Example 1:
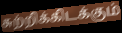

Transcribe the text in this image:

சுற்றிக்கிடக்கும்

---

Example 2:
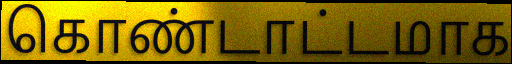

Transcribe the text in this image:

கொண்டாட்டமாக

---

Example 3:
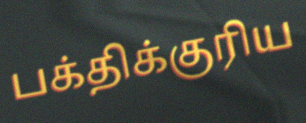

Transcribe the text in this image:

பக்திக்குரிய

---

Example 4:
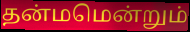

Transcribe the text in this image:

தன்மமென்றும்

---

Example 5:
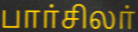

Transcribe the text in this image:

பார்சிலர்